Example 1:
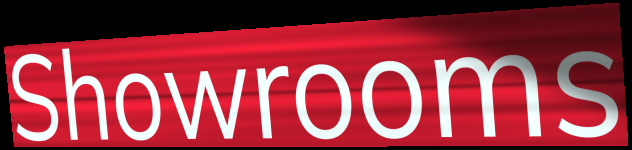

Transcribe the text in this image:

Showrooms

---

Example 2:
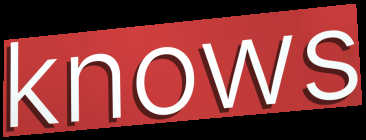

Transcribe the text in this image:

knows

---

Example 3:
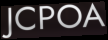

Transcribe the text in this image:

JCPOA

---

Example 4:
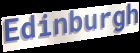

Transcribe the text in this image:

Edinburgh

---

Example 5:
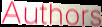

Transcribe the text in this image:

Authors